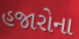
હજારોના